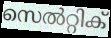
സെൽറ്റിക്